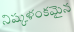
నిష్కళంకమైన